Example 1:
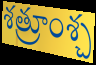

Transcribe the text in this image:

శత్రూంశ్చ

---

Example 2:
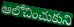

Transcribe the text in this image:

ఆలోచించుకుని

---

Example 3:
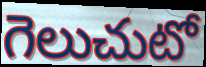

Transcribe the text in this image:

గెలుచుటో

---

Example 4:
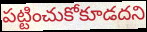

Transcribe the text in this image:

పట్టించుకోకూడదని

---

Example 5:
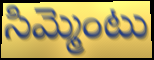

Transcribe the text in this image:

సిమ్మెంటు